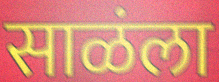
साळंला